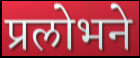
प्रलोभने